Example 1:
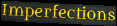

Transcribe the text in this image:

Imperfections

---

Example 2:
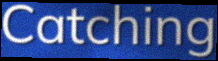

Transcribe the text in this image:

Catching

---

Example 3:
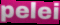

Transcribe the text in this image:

pelei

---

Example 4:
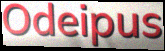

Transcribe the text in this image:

Odeipus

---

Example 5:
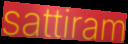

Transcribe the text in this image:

sattiram